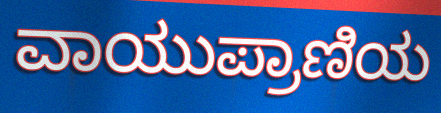
ವಾಯುಪ್ರಾಣಿಯ